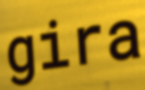
gira